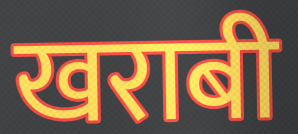
खराबी